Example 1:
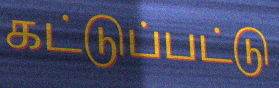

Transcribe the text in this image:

கட்டுப்பட்டு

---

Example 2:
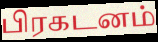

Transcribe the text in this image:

பிரகடனம்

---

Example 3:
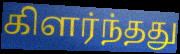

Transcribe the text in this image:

கிளர்ந்தது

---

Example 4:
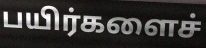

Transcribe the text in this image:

பயிர்களைச்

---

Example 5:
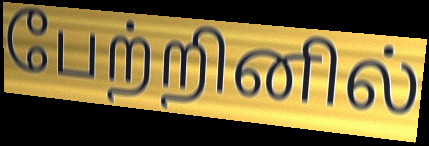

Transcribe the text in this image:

பேற்றினில்